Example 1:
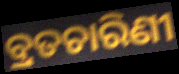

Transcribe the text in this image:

ବ୍ରତଚାରିଣୀ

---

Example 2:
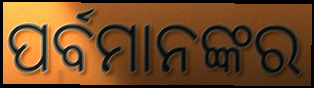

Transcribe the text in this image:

ପର୍ବମାନଙ୍କର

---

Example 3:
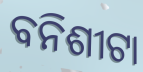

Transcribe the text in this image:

ବନିଶୀଟା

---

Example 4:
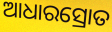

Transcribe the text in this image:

ଆଧାରସ୍ରୋତ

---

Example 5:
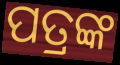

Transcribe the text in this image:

ପତ୍ରଙ୍କ